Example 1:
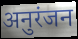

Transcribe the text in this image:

अनुरंजन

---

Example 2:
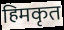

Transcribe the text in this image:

हिमकृत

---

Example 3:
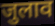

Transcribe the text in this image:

जुलाव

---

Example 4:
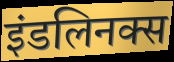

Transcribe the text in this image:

इंडलिनक्स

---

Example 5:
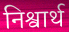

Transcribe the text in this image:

निश्वार्थ